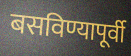
बसविण्यापूर्वी